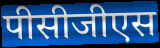
पीसीजीएस